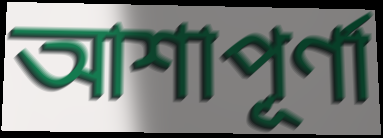
আশাপূর্ণা